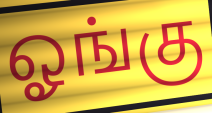
ஓங்கு